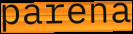
parena